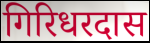
गिरिधरदास